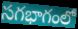
సగభాగంలో